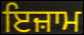
ਇਜ਼ਾਮ